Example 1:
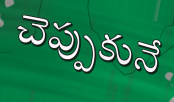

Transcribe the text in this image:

చెప్పుకునే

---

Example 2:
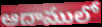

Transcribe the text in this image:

ఆదాములో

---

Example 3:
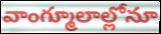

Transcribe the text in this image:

వాంగ్మూలాల్లోనూ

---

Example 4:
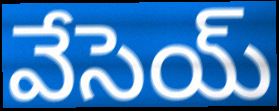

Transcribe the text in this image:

వేసెయ్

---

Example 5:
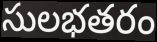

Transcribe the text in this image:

సులభతరం